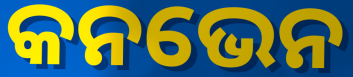
କନଭେନ